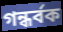
গন্ধৰ্বক